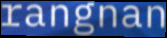
rangnan